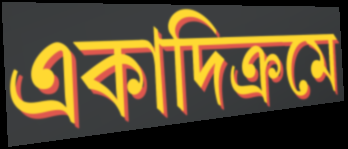
একাদিক্ৰমে